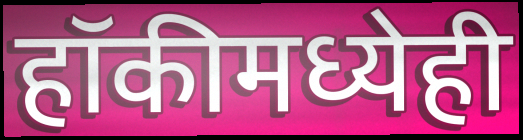
हॉकीमध्येही